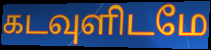
கடவுளிடமே